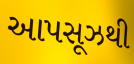
આપસૂઝથી